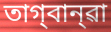
তাগ্‌বান্‌ৱা